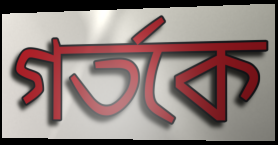
গর্তকে